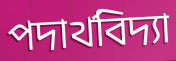
পদাৰ্থবিদ্যা